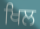
ਖਿਲ